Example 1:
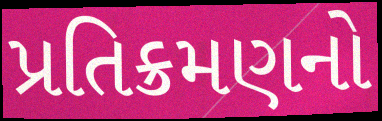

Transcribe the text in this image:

પ્રતિક્રમણનો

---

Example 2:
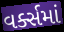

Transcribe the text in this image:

વર્ક્સમાં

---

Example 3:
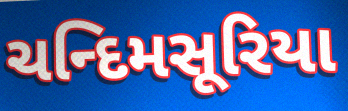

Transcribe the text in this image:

ચન્દિમસૂરિયા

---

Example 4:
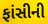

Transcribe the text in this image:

ફાંસીની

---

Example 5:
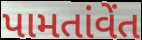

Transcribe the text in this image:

પામતાંવેંત